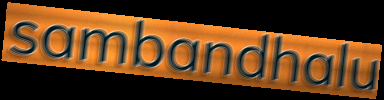
sambandhalu